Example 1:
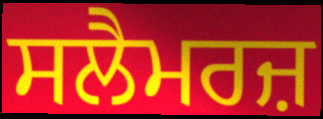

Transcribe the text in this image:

ਸਲੈਮਰਜ਼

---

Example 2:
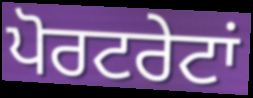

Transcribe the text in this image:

ਪੋਰਟਰੇਟਾਂ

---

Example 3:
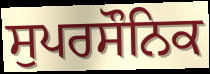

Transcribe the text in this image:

ਸੁਪਰਸੌਨਿਕ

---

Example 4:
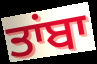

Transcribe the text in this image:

ਤਾਂਬਾ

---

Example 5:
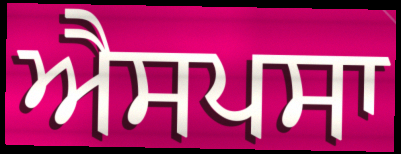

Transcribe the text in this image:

ਐਸਪਸਾ